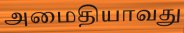
அமைதியாவது